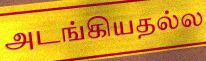
அடங்கியதல்ல